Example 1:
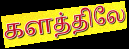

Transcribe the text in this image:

களத்திலே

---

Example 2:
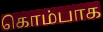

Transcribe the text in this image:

கொம்பாக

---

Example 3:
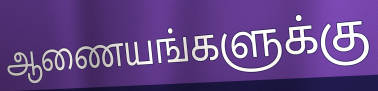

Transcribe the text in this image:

ஆணையங்களுக்கு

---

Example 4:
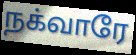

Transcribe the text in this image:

நக்வாரே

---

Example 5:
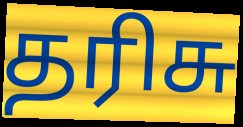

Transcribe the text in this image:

தரிசு